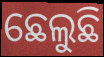
ଛେଲୁଛି